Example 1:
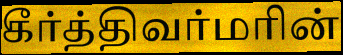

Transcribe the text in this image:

கீர்த்திவர்மரின்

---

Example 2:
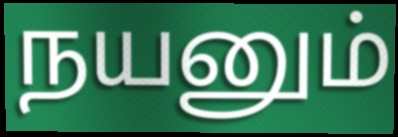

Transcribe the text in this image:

நயனும்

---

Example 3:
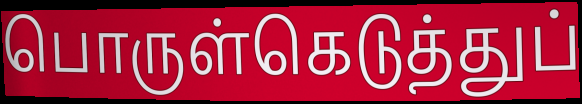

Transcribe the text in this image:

பொருள்கெடுத்துப்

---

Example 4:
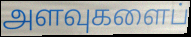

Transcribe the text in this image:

அளவுகளைப்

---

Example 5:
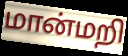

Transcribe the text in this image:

மான்மறி